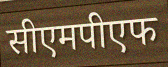
सीएमपीएफ